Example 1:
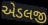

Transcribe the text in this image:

એડલજી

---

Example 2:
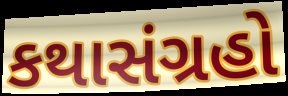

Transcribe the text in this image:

કથાસંગ્રહો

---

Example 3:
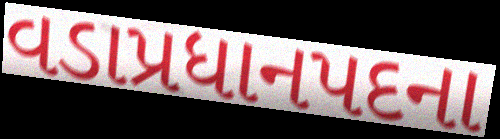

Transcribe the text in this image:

વડાપ્રધાનપદના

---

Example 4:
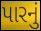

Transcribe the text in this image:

પારનું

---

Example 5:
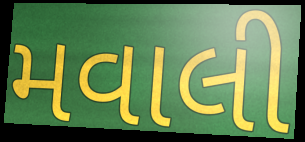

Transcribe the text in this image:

મવાલી